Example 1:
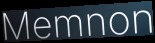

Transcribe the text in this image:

Memnon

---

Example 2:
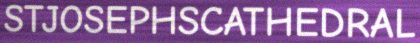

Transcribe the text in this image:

STJOSEPHSCATHEDRAL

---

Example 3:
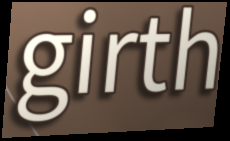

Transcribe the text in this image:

girth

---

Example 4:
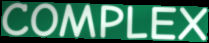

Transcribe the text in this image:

COMPLEX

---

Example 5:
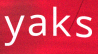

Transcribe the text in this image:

yaks